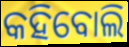
କହିବୋଲି